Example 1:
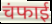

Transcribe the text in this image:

चंफाई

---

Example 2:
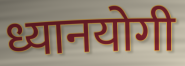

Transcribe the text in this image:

ध्यानयोगी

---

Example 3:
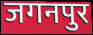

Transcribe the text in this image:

जगनपुर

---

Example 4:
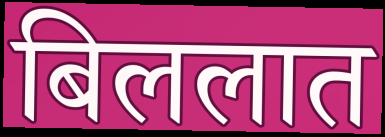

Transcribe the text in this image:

बिललात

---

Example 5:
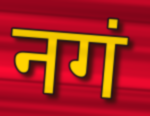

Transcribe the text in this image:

नगं